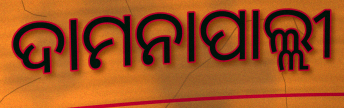
ଦାମନାପାଲ୍ଲୀ